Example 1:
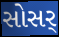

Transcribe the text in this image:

સોસર્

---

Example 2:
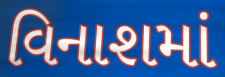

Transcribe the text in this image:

વિનાશમાં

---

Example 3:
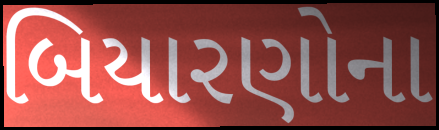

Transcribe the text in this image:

બિયારણોના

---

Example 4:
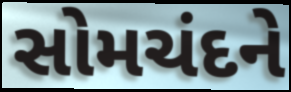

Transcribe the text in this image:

સોમચંદને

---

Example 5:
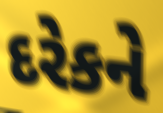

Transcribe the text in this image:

દરેકને